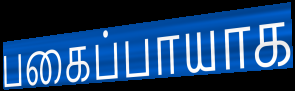
பகைப்பாயாக